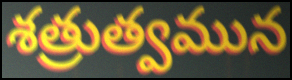
శత్రుత్వమున